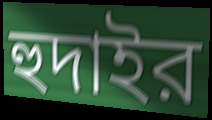
হুদাইর